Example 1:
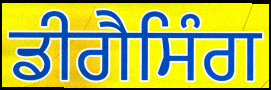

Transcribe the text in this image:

ਡੀਗੈਸਿੰਗ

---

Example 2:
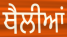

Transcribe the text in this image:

ਥੈਲੀਆਂ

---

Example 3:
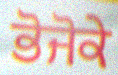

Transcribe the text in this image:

ਭੋਜੋਕੇ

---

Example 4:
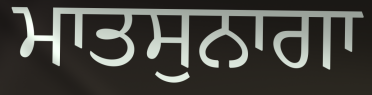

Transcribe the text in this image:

ਮਾਤਸੁਨਾਗਾ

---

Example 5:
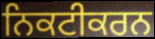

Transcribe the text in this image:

ਨਿਕਟੀਕਰਨ